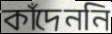
কাঁদেননি